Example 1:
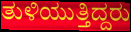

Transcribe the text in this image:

ತುಳಿಯುತ್ತಿದ್ದರು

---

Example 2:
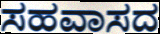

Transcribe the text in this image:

ಸಹವಾಸದ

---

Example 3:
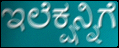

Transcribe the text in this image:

ಇಲೆಕ್ಷನ್ನಿಗೆ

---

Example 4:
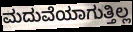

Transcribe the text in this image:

ಮದುವೆಯಾಗುತ್ತಿಲ್ಲ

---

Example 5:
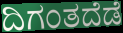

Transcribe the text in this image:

ದಿಗಂತದೆಡೆ